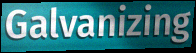
Galvanizing